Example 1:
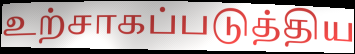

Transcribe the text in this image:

உற்சாகப்படுத்திய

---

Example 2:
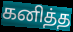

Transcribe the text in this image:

கனித்த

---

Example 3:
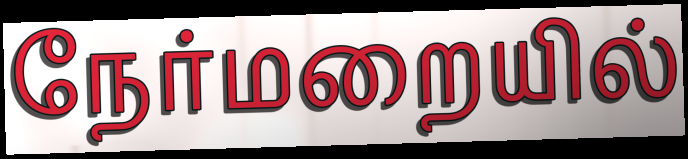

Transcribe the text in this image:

நேர்மறையில்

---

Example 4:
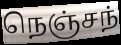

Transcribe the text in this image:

நெஞ்சந்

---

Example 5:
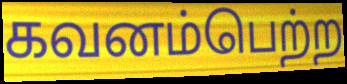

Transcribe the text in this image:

கவனம்பெற்ற